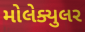
મોલેક્યુલર